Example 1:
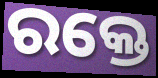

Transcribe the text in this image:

ରକ୍ତେ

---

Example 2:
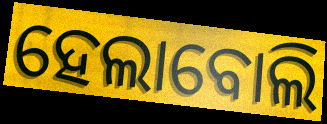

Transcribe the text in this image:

ହେଲାବୋଲି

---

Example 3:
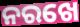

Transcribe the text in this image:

ନରଖେ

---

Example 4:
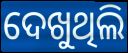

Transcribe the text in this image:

ଦେଖୁଥିଲି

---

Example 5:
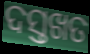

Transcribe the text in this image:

ଦସ୍ତଖତ